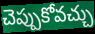
చెప్పుకోవచ్చు